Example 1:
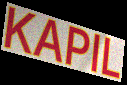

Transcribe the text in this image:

KAPIL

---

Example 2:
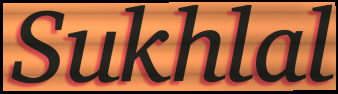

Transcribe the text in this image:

Sukhlal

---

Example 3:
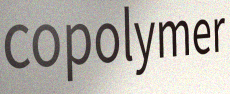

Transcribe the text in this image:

copolymer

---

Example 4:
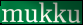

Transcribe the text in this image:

mukku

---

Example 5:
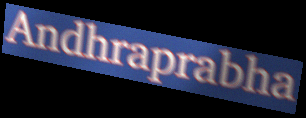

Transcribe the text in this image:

Andhraprabha